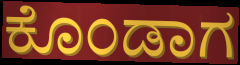
ಕೊಂಡಾಗ